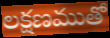
లక్షణముతో